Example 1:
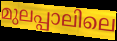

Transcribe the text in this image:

മുലപ്പാലിലെ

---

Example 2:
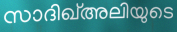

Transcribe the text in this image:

സാദിഖ്അലിയുടെ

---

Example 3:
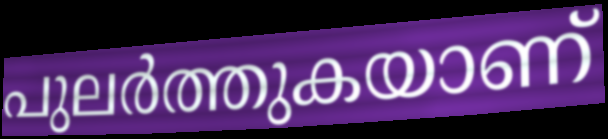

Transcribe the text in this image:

പുലർത്തുകയാണ്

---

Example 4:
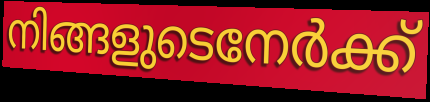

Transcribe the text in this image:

നിങ്ങളുടെനേർക്ക്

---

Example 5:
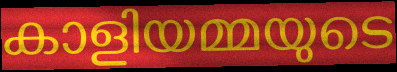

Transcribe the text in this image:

കാളിയമ്മയുടെ